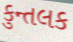
કુન્તલક